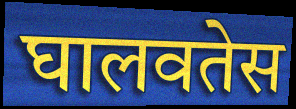
घालवतेस